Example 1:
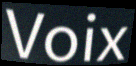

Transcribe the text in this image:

Voix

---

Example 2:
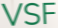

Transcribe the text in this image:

VSF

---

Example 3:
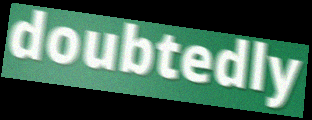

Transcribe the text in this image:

doubtedly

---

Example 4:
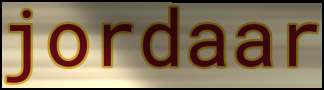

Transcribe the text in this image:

jordaar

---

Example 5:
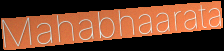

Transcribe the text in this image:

Mahabhaarata